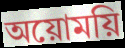
অয়োময়ি